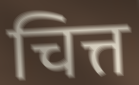
चित्त